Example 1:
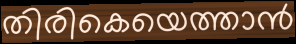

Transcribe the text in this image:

തിരികെയെത്താൻ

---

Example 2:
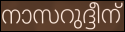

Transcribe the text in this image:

നാസറുദ്ദീന്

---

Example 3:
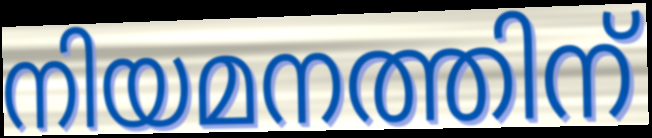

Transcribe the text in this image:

നിയമനത്തിന്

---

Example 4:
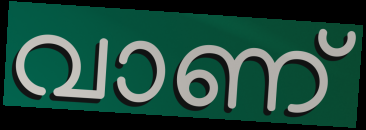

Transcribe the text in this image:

വാണ്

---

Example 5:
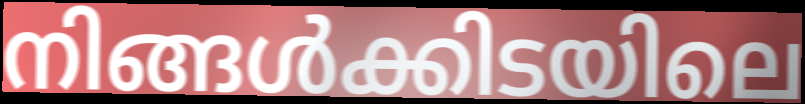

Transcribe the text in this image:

നിങ്ങൾക്കിടയിലെ